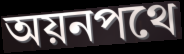
অয়নপথে